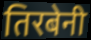
तिरबेनी